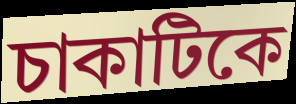
চাকাটিকে